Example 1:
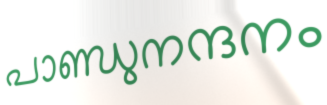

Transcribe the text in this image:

പാണ്ഡുനന്ദനം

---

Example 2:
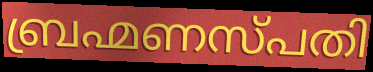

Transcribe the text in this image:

ബ്രഹ്മണസ്പതി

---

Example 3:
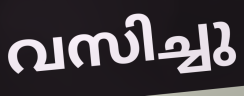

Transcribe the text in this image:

വസിച്ചു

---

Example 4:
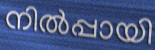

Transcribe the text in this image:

നിൽപ്പായി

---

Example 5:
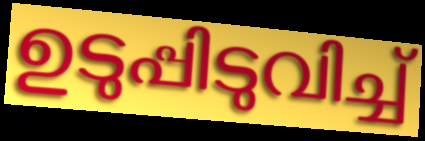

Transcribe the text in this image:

ഉടുപ്പിടുവിച്ച്